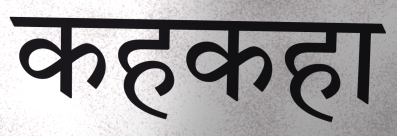
कहकहा